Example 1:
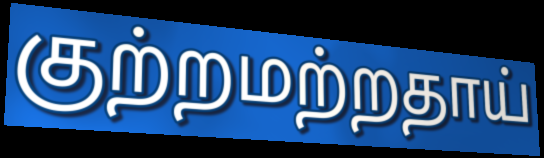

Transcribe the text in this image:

குற்றமற்றதாய்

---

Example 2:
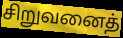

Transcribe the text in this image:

சிறுவனைத்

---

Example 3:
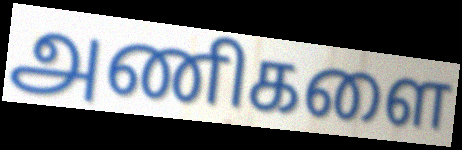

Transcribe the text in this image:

அணிகளை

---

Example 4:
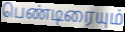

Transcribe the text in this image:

பெண்டிரையும்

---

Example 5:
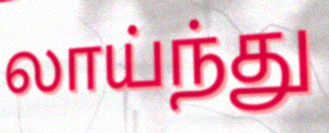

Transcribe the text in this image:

லாய்ந்து